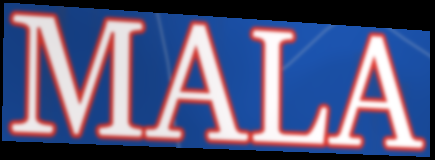
MALA